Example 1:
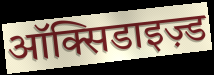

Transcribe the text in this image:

ऑक्सिडाइज़्ड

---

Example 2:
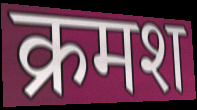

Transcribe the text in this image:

क्रमश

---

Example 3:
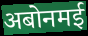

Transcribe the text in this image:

अबोनमई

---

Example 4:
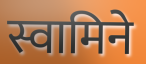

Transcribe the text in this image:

स्वामिने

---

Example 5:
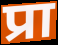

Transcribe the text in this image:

प्रा